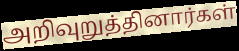
அறிவுறுத்தினார்கள்